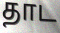
தாட